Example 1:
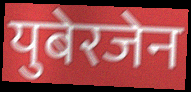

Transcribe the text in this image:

युबेरजेन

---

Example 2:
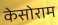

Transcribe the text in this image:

केसोराम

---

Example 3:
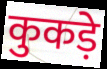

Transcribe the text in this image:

कुकड़े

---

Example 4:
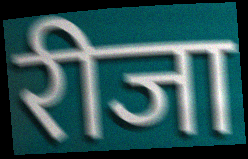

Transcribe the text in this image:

रीजा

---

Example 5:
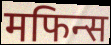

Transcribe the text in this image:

मफिन्स